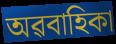
অৱবাহিকা